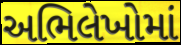
અભિલેખોમાં